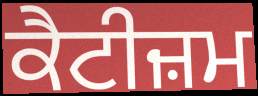
ਕੈਟੀਜ਼ਮ